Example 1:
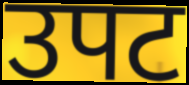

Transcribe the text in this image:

उपट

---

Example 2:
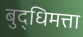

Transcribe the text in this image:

बुद्धिमत्ता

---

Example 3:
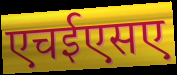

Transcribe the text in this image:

एचईएसए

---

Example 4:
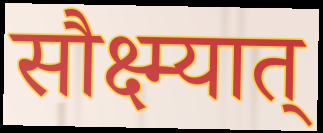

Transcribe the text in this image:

सौक्ष्म्यात्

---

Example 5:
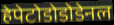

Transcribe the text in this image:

हेपेटोडोडोडेनल